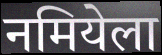
नमियेला